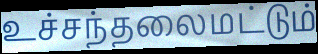
உச்சந்தலைமட்டும்